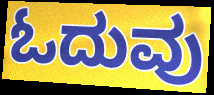
ಓದುವು